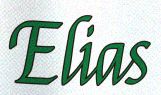
Elias